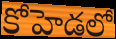
కోహెడలో